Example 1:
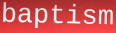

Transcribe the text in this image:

baptism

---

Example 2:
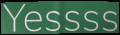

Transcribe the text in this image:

Yessss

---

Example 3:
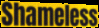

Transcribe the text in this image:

Shameless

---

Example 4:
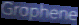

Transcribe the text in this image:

Graphene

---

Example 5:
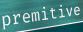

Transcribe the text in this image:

premitive